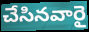
చేసినవారై